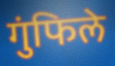
गुंफिले